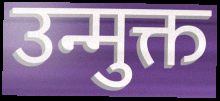
उन्मुक्त